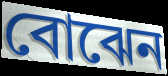
বোঝেন